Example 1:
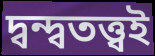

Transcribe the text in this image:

দ্বন্দ্বতত্ত্বই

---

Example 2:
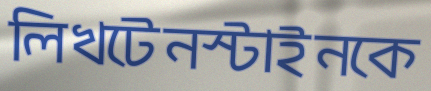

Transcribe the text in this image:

লিখটেনস্টাইনকে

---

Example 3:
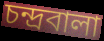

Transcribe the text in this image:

চন্দ্রবালা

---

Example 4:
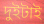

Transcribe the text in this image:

দুইটাই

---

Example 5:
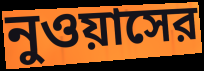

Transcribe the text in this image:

নুওয়াসের